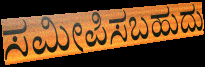
ಸಮೀಪಿಸಬಹುದು